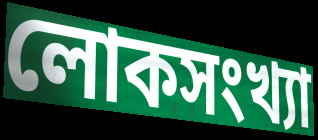
লোকসংখ্যা